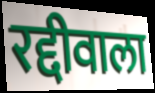
रद्दीवाला